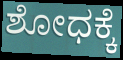
ಶೋಧಕ್ಕೆ